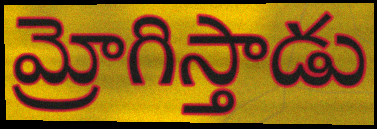
మ్రోగిస్తాడు